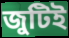
জুটিই